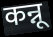
कन्नू